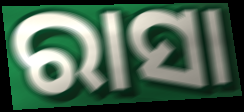
ରାସା